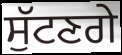
ਸੁੱਟਣਗੇ